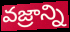
వజ్రాన్ని